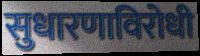
सुधारणाविरोधी